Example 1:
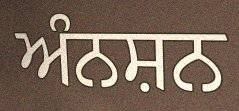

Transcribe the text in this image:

ਅੰਨਸ਼ਨ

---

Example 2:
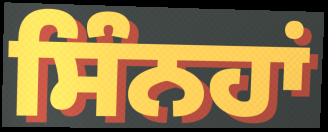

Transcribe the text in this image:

ਸਿੰਨਹਾਂ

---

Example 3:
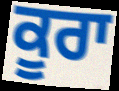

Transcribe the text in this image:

ਕੂਰਾ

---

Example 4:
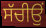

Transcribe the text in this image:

ਸੱਚੀਉਂ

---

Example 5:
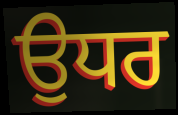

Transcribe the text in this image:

ਉਧਰ